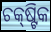
ଚକ୍‌ଷ୍ଟିକ